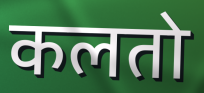
कलतो